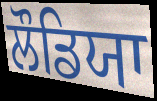
ਲੌਡਿਯਾ